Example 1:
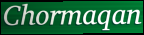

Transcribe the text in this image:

Chormaqan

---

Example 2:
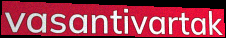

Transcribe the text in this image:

vasantivartak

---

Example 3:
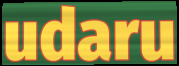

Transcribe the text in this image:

udaru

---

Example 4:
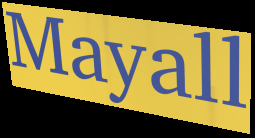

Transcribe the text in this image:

Mayall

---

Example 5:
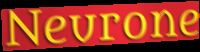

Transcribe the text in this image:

Neurone